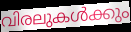
വിരലുകൾക്കും